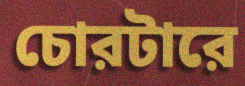
চোরটারে